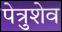
पेत्रुशेव